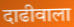
दाढीवाला